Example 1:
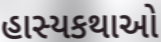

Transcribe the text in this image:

હાસ્યકથાઓ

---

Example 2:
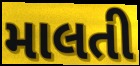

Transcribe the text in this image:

માલતી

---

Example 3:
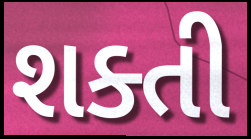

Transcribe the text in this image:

શક્તી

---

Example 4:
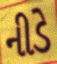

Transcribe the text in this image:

નીડે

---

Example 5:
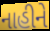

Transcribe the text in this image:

નાહીને